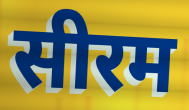
सीरम